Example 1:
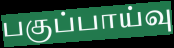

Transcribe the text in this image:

பகுப்பாய்வு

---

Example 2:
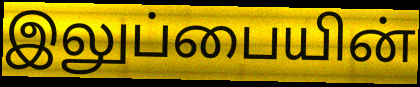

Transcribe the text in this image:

இலுப்பையின்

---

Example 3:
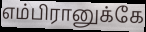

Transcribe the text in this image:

எம்பிரானுக்கே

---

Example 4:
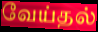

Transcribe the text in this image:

வேய்தல்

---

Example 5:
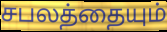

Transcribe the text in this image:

சபலத்தையும்